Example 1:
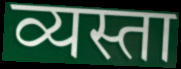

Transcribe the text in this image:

व्यस्ता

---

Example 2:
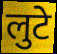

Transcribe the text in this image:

लुटे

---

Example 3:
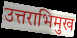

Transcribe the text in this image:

उत्तराभिमुख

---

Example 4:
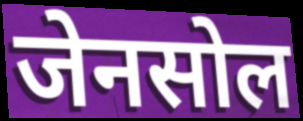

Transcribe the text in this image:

जेनसोल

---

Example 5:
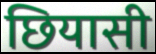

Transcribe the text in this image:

छियासी